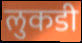
लुकडी